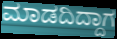
ಮಾಡದಿದ್ದಾಗ